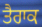
ਤੈਰਾਕ